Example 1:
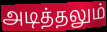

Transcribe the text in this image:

அடித்தலும்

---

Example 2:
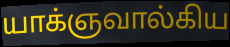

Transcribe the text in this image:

யாக்ஞவால்கிய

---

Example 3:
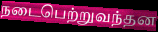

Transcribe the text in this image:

நடைபெற்றுவந்தன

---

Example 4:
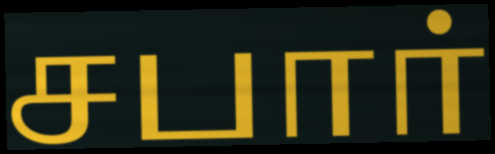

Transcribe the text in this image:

சபார்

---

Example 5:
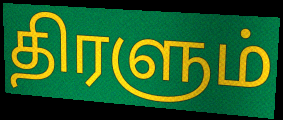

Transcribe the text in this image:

திரளும்